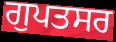
ਗੁਪਤਸਰ